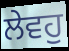
ਲੇਵਹੁ